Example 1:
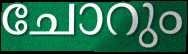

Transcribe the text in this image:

ചോറും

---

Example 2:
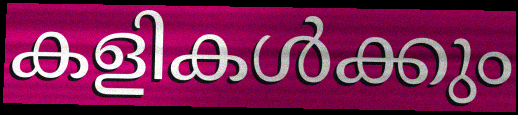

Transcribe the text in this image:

കളികൾക്കും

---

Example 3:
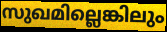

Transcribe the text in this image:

സുഖമില്ലെങ്കിലും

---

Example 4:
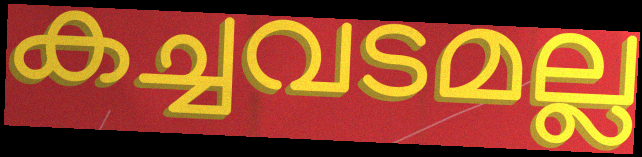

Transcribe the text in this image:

കച്ചവടമല്ല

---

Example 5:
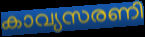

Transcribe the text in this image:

കാവ്യസരണി